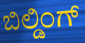
ಬಿಲ್ಡಿಂಗ್